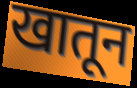
खातून